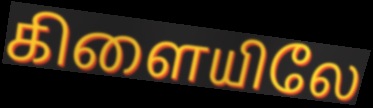
கிளையிலே